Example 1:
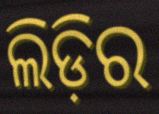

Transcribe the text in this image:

ଲିଡ଼ିର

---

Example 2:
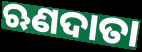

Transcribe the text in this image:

ଋଣଦାତା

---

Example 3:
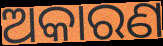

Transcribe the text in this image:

ଅକାରଣ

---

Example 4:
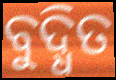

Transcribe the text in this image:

ବୁଦ୍ଧିତ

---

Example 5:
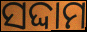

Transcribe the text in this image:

ସଦ୍ଦାମ